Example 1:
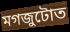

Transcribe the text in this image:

মগজুটোত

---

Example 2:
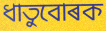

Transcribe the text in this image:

ধাতুবোৰক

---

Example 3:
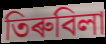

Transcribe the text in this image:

তিৰুবিলা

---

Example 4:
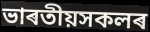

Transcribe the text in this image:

ভাৰতীয়সকলৰ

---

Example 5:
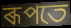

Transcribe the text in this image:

ৰূপতে